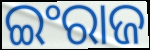
ଇଂରାଜ